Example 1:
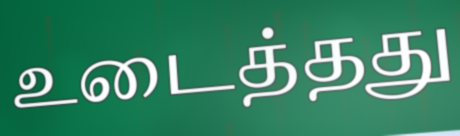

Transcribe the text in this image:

உடைத்தது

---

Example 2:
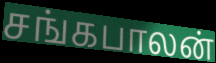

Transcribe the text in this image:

சங்கபாலன்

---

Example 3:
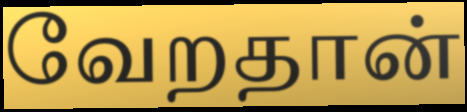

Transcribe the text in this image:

வேறதான்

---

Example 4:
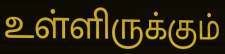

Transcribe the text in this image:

உள்ளிருக்கும்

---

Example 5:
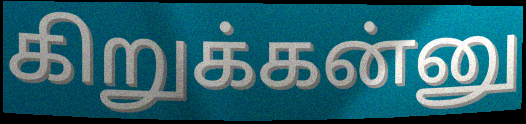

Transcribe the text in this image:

கிறுக்கன்னு